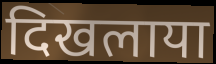
दिखलाया